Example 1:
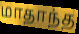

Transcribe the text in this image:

மாதாந்த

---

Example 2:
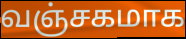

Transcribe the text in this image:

வஞ்சகமாக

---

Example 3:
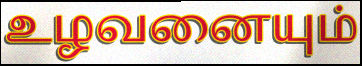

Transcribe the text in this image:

உழவனையும்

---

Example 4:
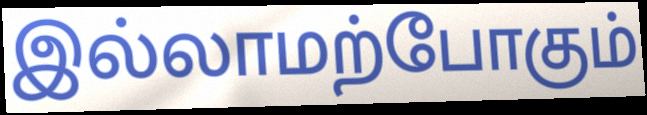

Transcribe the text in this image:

இல்லாமற்போகும்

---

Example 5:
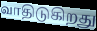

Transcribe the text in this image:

வாதிடுகிறது